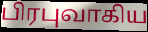
பிரபுவாகிய